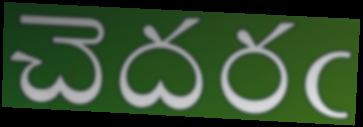
చెదరఁ